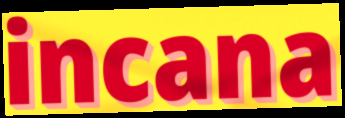
incana